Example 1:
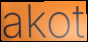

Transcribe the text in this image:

akot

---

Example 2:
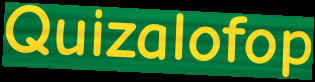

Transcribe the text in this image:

Quizalofop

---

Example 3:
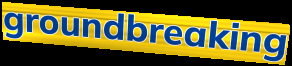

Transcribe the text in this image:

groundbreaking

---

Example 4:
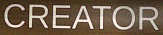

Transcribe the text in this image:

CREATOR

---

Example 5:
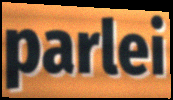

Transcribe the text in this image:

parlei